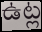
ఉట్ల